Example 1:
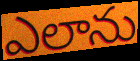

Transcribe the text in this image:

ఎలాను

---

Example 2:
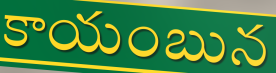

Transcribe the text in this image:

కాయంబున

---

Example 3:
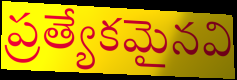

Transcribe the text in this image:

ప్రత్యేకమైనవి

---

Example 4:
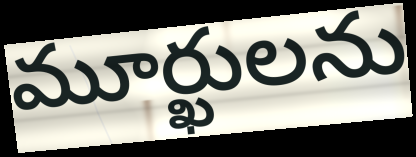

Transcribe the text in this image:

మూర్ఖులను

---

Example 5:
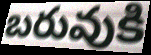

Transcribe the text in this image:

బరువుకి